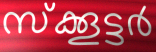
സ്ക്കൂട്ടർ